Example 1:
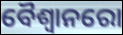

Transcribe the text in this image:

ବୈଶ୍ୱାନରୋ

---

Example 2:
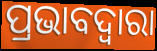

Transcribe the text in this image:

ପ୍ରଭାବଦ୍ୱାରା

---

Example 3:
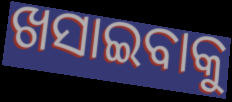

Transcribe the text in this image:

ଖସାଇବାକୁ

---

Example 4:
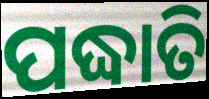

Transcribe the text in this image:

ପଦ୍ଧାତି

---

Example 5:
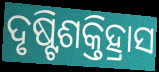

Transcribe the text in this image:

ଦୃଷ୍ଟିଶକ୍ତିହ୍ରାସ